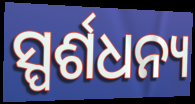
ସ୍ପର୍ଶଧନ୍ୟ